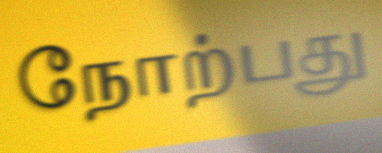
நோற்பது